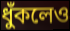
ধুঁকলেও